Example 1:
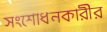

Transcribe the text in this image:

সংশোধনকারীর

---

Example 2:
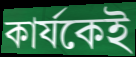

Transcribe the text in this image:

কার্যকেই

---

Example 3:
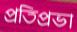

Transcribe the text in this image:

প্রতিপ্রভা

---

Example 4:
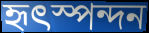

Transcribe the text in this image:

হৃৎস্পন্দন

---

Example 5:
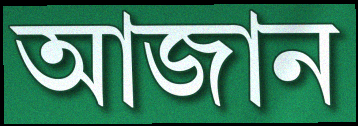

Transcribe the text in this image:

আজান